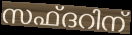
സഫ്ദറിന്